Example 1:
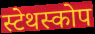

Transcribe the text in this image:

स्टेथस्कोप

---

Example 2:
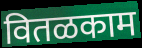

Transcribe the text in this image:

वितळकाम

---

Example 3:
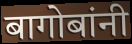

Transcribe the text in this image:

बागोबांनी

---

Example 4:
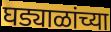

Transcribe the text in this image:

घड्याळांच्या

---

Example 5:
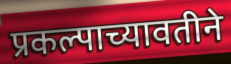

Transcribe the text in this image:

प्रकल्पाच्यावतीने